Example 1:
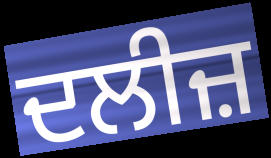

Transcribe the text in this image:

ਦਲੀਜ਼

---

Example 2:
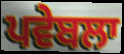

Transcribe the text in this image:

ਪਵੇਬਲਾ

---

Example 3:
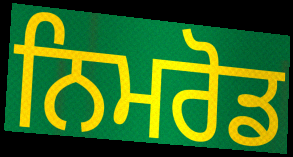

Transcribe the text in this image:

ਨਿਮਰੋਡ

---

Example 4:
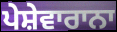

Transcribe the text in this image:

ਪੇਸ਼ੇਵਾਰਾਨਾ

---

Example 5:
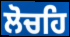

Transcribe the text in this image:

ਲੋਚਹਿ